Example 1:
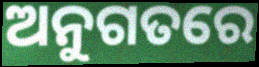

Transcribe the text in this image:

ଅନୁଗତରେ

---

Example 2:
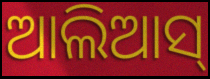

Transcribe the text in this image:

ଆଲିଆସ୍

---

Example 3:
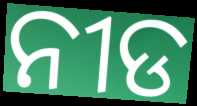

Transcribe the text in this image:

ନୀଡ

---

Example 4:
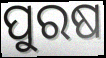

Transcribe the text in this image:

ପୁରଷ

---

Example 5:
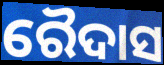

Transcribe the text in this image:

ରୈଦାସ